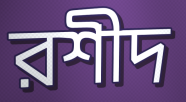
রশীদ